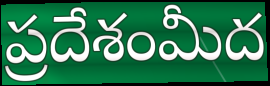
ప్రదేశంమీద